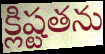
క్లిష్టతను